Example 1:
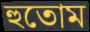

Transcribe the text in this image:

হুতোম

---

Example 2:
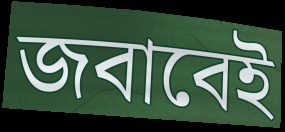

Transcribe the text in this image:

জবাবেই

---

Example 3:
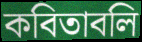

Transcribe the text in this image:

কবিতাবলি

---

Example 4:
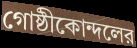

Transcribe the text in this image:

গোষ্ঠীকোন্দলের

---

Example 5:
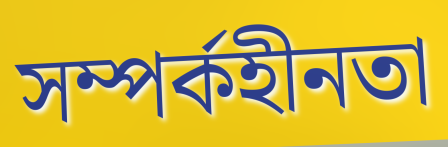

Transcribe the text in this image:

সম্পর্কহীনতা